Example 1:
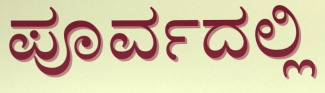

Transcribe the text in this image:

ಪೂರ್ವದಲ್ಲಿ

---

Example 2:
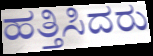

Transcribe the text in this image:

ಹತ್ತಿಸಿದರು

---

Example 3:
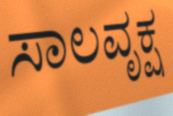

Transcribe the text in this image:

ಸಾಲವೃಕ್ಷ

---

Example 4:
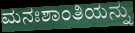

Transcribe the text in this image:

ಮನಃಶಾಂತಿಯನ್ನು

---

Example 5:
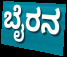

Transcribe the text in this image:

ಬೈರನ